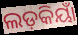
ଲଡ଼କିୟାଁ